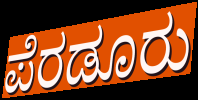
ಪೆರಡೂರು